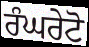
ਰੰਘਰੇਟੋ